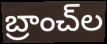
బ్రాంచ్‌ల